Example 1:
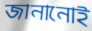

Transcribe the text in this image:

জানানোই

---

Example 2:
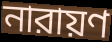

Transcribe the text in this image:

নারায়ণ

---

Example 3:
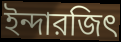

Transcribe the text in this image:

ইন্দারজিৎ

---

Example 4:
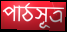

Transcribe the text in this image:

পাঠসূত্র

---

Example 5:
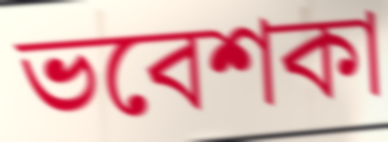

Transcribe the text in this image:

ভবেশকা